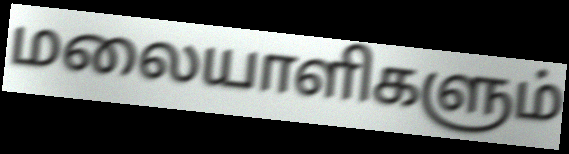
மலையாளிகளும்